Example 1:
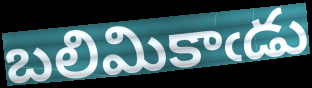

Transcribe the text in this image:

బలిమికాఁడు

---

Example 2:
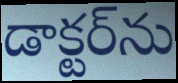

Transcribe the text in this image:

డాక్టర్‌ను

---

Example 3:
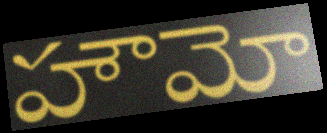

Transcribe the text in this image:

హౌమో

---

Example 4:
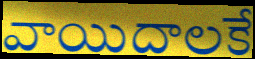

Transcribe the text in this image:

వాయిదాలకే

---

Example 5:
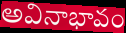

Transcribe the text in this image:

అవినాభావం